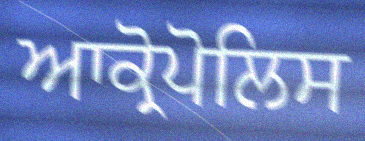
ਆਕ੍ਰੋਪੋਲਿਸ